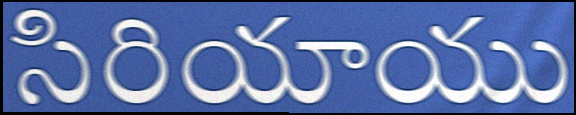
సిరియాయు